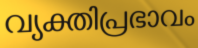
വ്യക്തിപ്രഭാവം